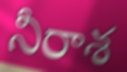
నీరాశ